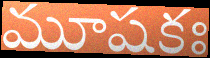
మూషకః